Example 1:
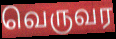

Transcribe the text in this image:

வெருவர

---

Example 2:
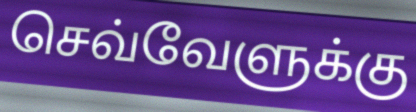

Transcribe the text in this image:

செவ்வேளுக்கு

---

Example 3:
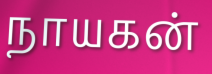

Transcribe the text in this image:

நாயகன்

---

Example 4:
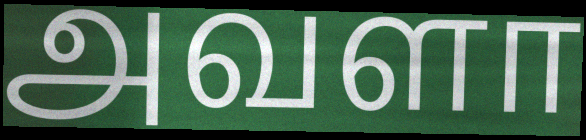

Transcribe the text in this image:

அவளா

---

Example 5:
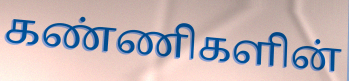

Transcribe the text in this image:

கண்ணிகளின்